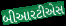
બીઆરટીએસ